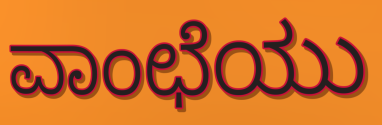
ವಾಂಛೆಯು